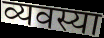
व्यवस्या